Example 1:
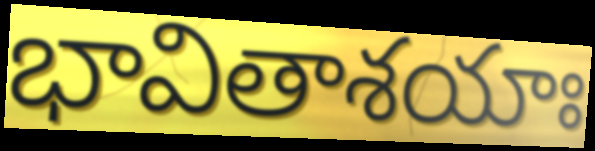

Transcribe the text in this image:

భావితాశయాః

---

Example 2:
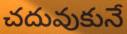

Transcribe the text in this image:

చదువుకునే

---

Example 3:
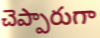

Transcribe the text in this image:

చెప్పారుగా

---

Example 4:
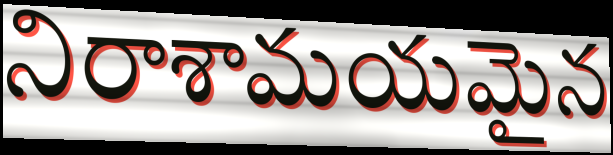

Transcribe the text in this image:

నిరాశామయమైన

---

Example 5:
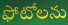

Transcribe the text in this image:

ఫోటోలను